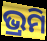
ଭ୍ରମି